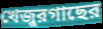
খেজুরগাছের